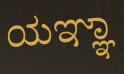
ಯಞ್ಞಾ